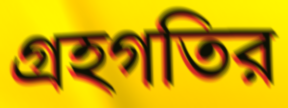
গ্রহগতির